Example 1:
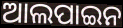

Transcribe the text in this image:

ଆଲପାଇନ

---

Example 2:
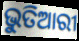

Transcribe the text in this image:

ଭୁତିଆରୀ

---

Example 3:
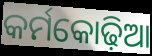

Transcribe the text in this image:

କର୍ମକୋଢ଼ିଆ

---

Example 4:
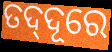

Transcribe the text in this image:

ତଦ୍‍ଦୂରେ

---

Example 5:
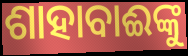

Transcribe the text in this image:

ଶାହାବାଈଙ୍କୁ